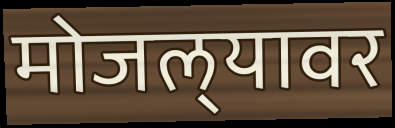
मोजल्यावर